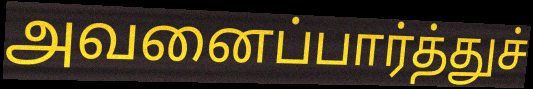
அவனைப்பார்த்துச்